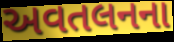
અવતલનના